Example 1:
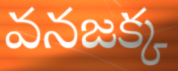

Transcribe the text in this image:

వనజక్క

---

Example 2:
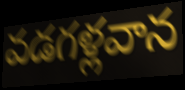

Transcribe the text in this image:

వడగళ్లవాన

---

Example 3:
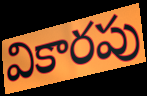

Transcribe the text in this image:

వికారపు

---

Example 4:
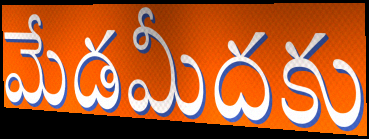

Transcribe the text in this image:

మేడమీదకు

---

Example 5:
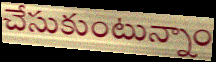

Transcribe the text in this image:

చేసుకుంటున్నాం